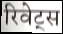
रिवेट्स